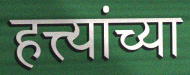
हत्त्यांच्या